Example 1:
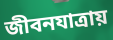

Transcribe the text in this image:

জীবনযাত্রায়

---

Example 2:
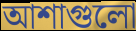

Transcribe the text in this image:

আশাগুলো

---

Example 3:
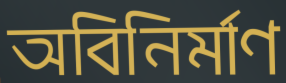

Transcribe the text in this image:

অবিনির্মাণ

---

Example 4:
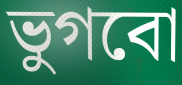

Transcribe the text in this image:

ভুগবো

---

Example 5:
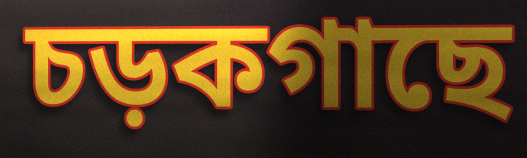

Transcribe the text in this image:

চড়কগাছে